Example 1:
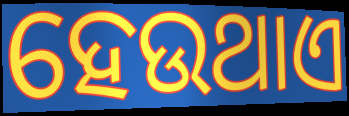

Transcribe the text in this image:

ହେଉଥାଏ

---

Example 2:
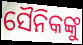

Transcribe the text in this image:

ସୈନିକଙ୍କୁ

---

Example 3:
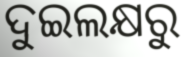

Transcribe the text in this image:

ଦୁଇଲକ୍ଷରୁ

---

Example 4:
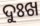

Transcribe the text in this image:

ଦୁଃଖ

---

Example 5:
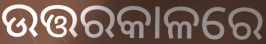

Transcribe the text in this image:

ଉତ୍ତରକାଳରେ